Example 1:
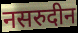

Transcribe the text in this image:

नसरुदीन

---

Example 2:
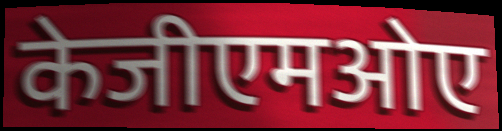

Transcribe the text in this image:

केजीएमओए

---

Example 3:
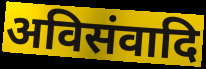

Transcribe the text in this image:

अविसंवादि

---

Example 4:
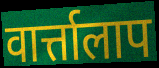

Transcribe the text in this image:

वार्त्तालाप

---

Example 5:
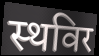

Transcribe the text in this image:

स्थविर